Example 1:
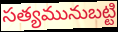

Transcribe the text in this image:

సత్యమునుబట్టి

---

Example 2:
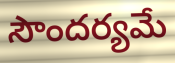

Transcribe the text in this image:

సౌందర్యమే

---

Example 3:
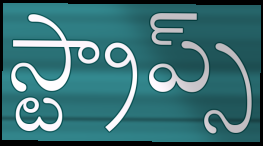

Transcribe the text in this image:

స్ట్రాప్స్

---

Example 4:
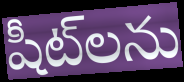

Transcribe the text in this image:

షీట్‌లను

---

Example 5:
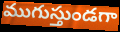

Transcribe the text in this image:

ముగుస్తుండగా